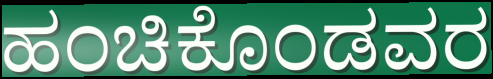
ಹಂಚಿಕೊಂಡವರ